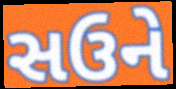
સઉને